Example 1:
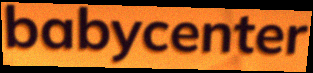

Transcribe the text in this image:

babycenter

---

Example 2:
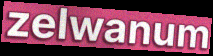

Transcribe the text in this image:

zelwanum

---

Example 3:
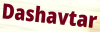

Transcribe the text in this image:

Dashavtar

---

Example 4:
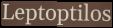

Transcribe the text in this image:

Leptoptilos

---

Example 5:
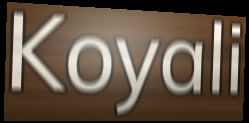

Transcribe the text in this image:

Koyali